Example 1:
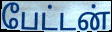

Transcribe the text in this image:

பேட்டன்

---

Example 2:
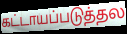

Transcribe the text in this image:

கட்டாயப்படுத்தல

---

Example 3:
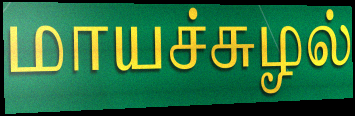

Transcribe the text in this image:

மாயச்சுழல்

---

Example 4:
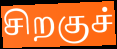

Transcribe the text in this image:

சிறகுச்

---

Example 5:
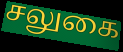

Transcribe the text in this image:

சலுகை